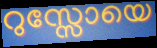
റുസ്സോയെ